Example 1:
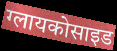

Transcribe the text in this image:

ग्लायकोसाइड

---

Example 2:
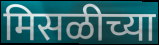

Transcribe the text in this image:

मिसळीच्या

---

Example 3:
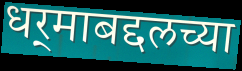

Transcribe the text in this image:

धर्माबद्दलच्या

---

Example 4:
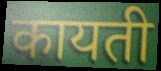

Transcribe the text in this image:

कायती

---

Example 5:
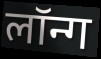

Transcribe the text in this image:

लॉन्ग